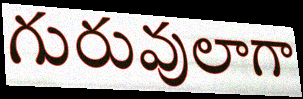
గురువులాగా